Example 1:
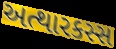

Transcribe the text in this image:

અત્થારકસ્સ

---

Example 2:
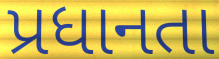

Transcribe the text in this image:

પ્રધાનતા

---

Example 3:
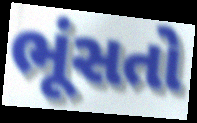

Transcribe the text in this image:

ભૂંસતો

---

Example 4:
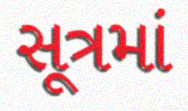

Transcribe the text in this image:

સૂત્રમાં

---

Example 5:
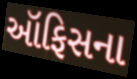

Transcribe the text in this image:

ઑફિસના